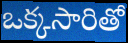
ఒక్కసారితో